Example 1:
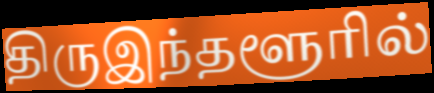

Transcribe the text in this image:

திருஇந்தளூரில்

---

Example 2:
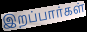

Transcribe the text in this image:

இறப்பார்கள்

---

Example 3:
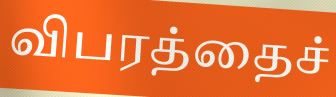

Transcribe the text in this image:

விபரத்தைச்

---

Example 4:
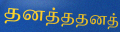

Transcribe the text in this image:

தனத்ததனத்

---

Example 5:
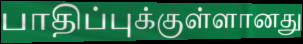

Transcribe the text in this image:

பாதிப்புக்குள்ளானது